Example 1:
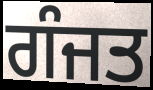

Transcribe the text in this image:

ਗੰਜਤ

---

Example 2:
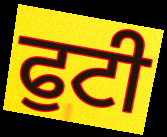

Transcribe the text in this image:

ਫੁਟੀ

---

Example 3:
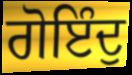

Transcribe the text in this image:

ਗੋਇੰਦੁ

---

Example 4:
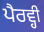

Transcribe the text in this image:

ਪੈਰਵ੍ਹੀ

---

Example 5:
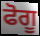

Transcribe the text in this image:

ਫੋਗੂ